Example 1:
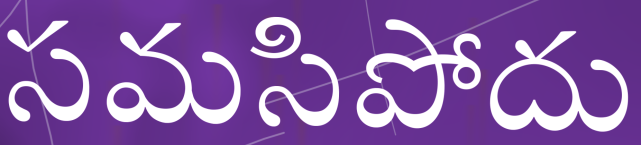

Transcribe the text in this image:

సమసిపోదు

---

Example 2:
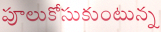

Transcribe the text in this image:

పూలుకోసుకుంటున్న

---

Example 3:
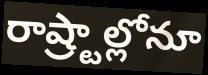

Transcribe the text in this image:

రాష్ర్టాల్లోనూ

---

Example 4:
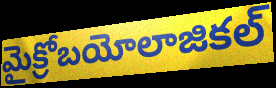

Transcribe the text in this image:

మైక్రోబయోలాజికల్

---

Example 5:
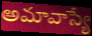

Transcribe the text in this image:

అమావాస్యే